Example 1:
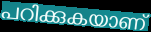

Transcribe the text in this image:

പറിക്കുകയാണ്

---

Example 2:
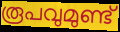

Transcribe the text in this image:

രൂപവുമുണ്ട്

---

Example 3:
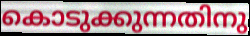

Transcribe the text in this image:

കൊടുക്കുന്നതിനു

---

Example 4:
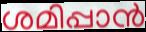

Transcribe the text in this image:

ശമിപ്പാൻ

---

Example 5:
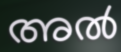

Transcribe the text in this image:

അൽ